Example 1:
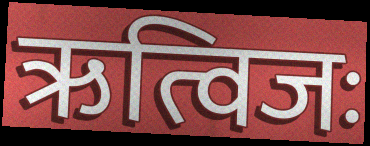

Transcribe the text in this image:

ऋत्विजः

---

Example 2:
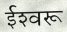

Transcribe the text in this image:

ईश्वरू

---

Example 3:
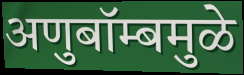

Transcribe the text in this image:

अणुबॉम्बमुळे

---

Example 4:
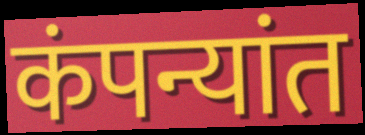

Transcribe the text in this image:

कंपन्यांत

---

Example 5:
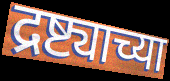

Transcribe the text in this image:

द्रष्ट्याच्या